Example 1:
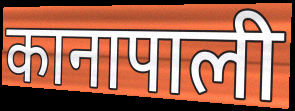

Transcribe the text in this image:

कानापाली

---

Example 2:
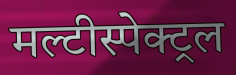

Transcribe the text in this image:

मल्टीस्पेक्ट्रल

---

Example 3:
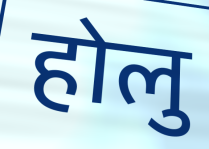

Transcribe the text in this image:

होलु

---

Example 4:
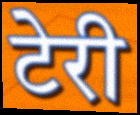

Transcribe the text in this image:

टेरी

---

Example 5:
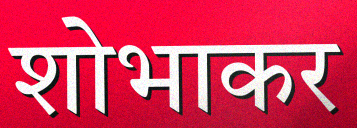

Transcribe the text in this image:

शोभाकर